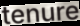
tenure